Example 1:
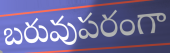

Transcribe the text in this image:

బరువుపరంగా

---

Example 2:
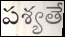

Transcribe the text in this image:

పశ్యతే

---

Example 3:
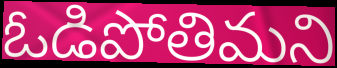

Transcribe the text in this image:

ఓడిపోతిమని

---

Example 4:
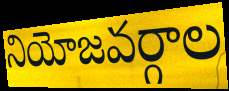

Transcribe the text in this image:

నియోజవర్గాల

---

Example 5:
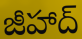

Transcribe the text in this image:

జీహాద్